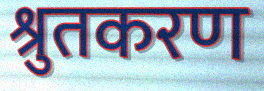
श्रुतकरण